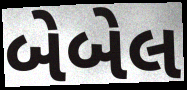
બેબેલ